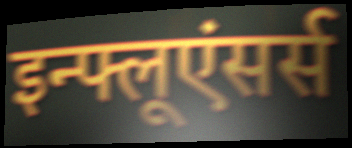
इन्फ्लूएंसर्स